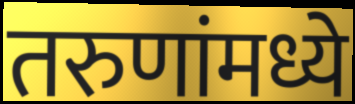
तरुणांमध्ये